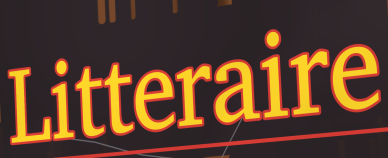
Litteraire